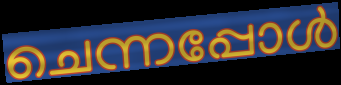
ചെന്നപ്പോൾ